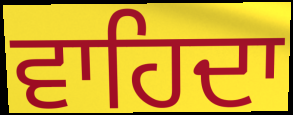
ਵਾਹਿਦਾ